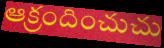
ఆక్రందించుచు